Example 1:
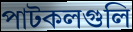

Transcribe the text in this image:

পাটকলগুলি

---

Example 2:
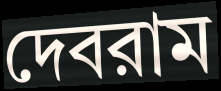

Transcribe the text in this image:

দেবরাম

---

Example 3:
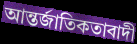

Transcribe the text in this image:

আন্তর্জাতিকতাবাদী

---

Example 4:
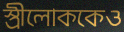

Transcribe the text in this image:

স্ত্রীলোককেও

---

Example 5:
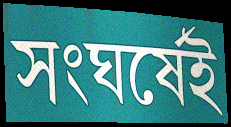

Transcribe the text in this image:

সংঘর্ষেই